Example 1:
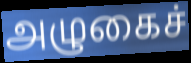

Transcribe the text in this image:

அழுகைச்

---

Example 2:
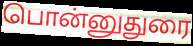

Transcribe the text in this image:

பொன்னுதுரை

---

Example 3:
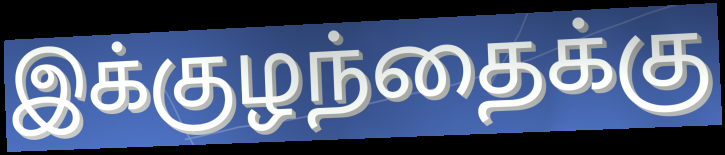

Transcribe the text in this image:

இக்குழந்தைக்கு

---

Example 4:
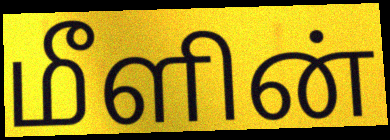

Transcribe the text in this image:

மீளின்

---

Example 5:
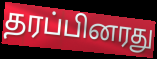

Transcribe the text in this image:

தரப்பினரது